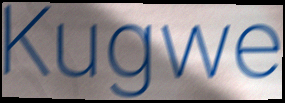
Kugwe